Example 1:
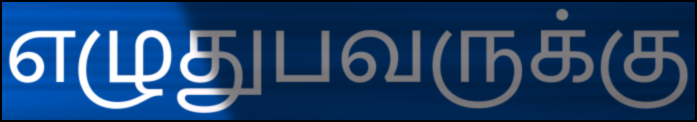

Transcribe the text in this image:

எழுதுபவருக்கு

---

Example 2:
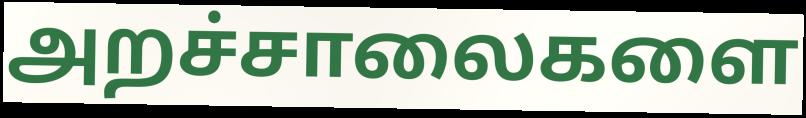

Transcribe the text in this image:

அறச்சாலைகளை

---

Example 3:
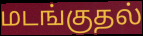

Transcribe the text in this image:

மடங்குதல்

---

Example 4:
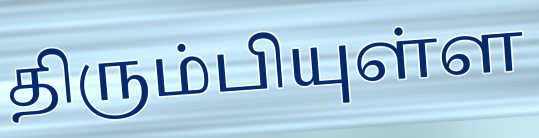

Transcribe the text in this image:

திரும்பியுள்ள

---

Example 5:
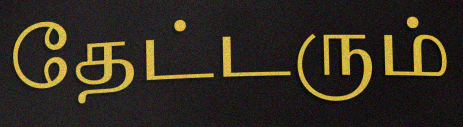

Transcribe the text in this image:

தேட்டரும்